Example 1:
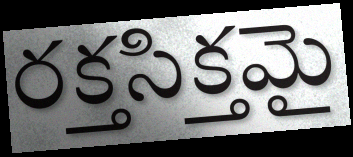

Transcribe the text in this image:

రక్తసిక్తమై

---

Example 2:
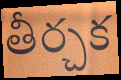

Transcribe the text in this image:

తీర్చక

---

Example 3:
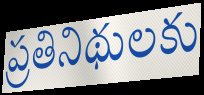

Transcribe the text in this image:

ప్రతినిథులకు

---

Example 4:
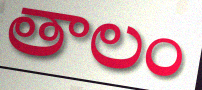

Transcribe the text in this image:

తాలం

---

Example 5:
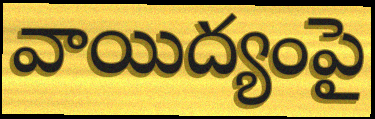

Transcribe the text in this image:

వాయిద్యంపై